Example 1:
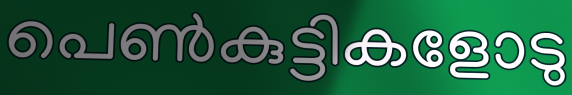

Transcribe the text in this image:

പെൺകുട്ടികളോടു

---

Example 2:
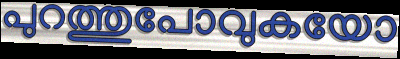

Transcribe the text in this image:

പുറത്തുപോവുകയോ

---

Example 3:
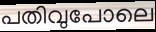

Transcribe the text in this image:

പതിവുപോലെ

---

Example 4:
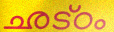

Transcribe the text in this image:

ഛട്ഠം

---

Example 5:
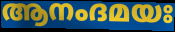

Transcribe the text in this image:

ആനംദമയഃ